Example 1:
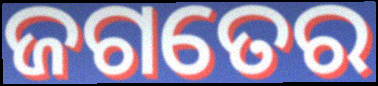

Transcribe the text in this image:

ଜଗତେର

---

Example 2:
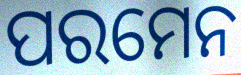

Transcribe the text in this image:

ପରମେନ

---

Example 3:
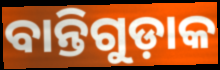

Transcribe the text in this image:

ବାନ୍ତିଗୁଡ଼ାକ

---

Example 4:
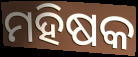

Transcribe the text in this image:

ମହିଷକ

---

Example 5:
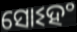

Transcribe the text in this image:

ସୋଽହଂ